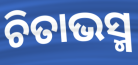
ଚିତାଭସ୍ମ